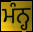
ਮੰਨ੍ਹ